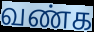
வண்க